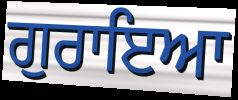
ਗੁਰਾਇਆ